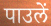
पाउलें